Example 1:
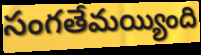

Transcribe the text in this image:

సంగతేమయ్యింది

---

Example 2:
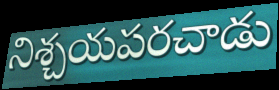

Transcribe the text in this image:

నిశ్చయపరచాడు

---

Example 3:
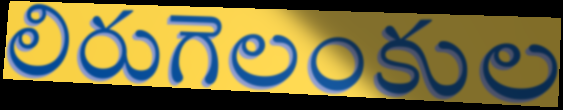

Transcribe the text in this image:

లిరుగెలంకుల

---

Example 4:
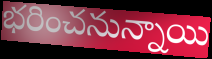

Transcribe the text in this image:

భరించనున్నాయి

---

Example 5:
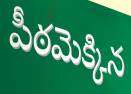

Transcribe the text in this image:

పీఠమెక్కిన